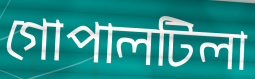
গোপালটিলা